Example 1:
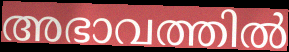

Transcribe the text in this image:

അഭാവത്തിൽ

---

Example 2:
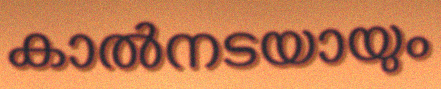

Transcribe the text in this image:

കാൽനടയായും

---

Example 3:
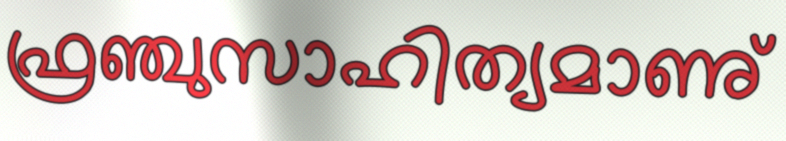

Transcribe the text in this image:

ഫ്രഞ്ചുസാഹിത്യമാണു്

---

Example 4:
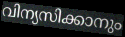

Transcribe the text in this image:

വിന്യസിക്കാനും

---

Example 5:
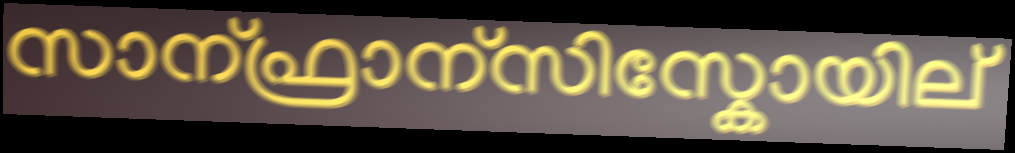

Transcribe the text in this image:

സാന്ഫ്രാന്സിസ്കോയില്